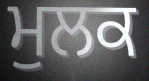
ਮੁਲਕ